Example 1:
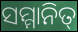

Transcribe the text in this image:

ସମ୍ମାନିତ୍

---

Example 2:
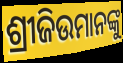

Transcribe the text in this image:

ଶ୍ରୀଜିଉମାନଙ୍କୁ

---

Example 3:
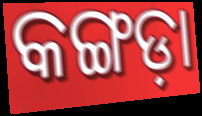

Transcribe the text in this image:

କଙ୍ଗଡ଼ା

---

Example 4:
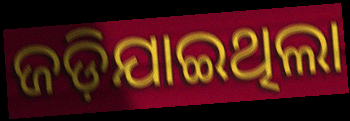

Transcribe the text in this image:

ଜଡ଼ିଯାଇଥିଲା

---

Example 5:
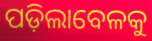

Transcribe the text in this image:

ପଡ଼ିଲାବେଳକୁ